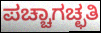
ಪಚ್ಚಾಗಚ್ಛತಿ